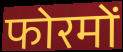
फोरमों